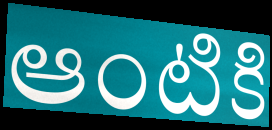
ఆంటికి